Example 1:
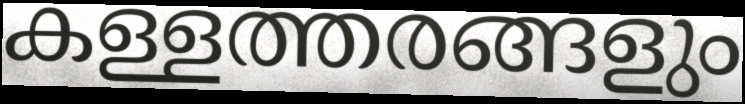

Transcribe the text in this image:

കള്ളത്തരങ്ങളും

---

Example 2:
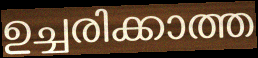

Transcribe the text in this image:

ഉച്ചരിക്കാത്ത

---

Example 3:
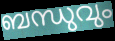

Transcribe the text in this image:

ബന്ധുവും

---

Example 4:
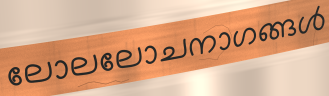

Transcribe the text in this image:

ലോലലോചനാഗങ്ങൾ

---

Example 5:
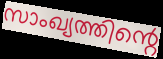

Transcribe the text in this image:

സാംഖ്യത്തിന്റെ